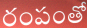
రంపంతో